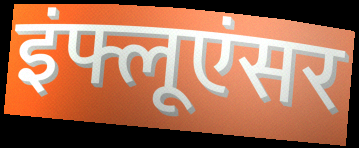
इंफ्लूएंसर